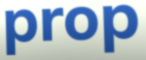
prop